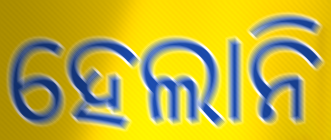
ହେଲାନି